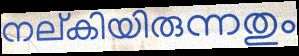
നല്കിയിരുന്നതും